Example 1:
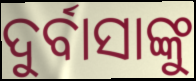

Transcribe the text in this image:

ଦୁର୍ବାସାଙ୍କୁ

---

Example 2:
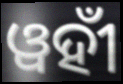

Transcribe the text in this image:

ୱହୀଁ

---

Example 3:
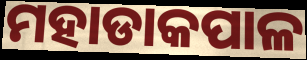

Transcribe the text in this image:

ମହାଡାକପାଳ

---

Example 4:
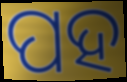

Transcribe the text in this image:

ପହ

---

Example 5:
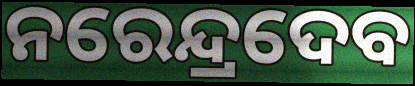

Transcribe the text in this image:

ନରେନ୍ଦ୍ରଦେବ